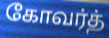
கோவர்த்